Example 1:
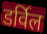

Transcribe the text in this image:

डर्विल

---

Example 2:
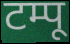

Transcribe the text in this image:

टम्पू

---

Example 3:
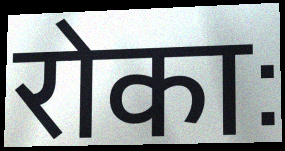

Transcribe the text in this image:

रोकाः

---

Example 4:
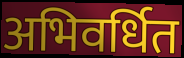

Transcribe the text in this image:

अभिवर्धित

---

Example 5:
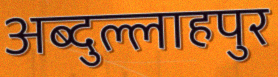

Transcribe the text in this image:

अब्दुल्लाहपुर